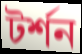
টর্শন